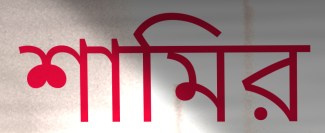
শামির